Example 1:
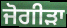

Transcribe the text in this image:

ਜੋਗੀੜਾ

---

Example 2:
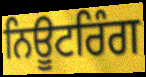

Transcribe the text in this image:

ਨਿਊਟਰਿੰਗ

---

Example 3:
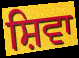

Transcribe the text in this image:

ਸ਼ਿਵਾ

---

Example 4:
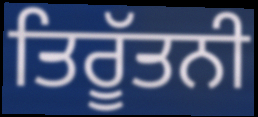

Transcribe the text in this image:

ਤਿਰੂੱਤਨੀ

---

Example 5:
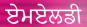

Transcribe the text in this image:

ਏਮਏਲਡੀ